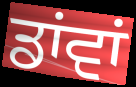
ਡਾਂਵਾਂ